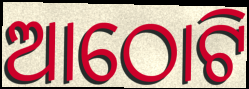
ଆଠୋଟି